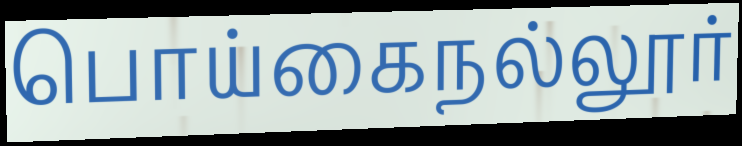
பொய்கைநல்லூர்